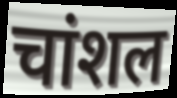
चांशल